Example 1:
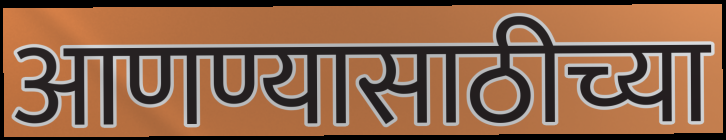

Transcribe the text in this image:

आणण्यासाठीच्या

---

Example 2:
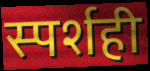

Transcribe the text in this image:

स्पर्शही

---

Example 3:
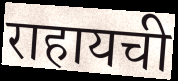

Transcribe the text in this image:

राहायची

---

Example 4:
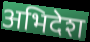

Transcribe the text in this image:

अभिदेश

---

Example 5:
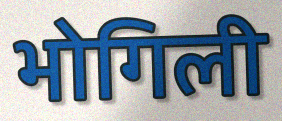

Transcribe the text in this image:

भोगिली